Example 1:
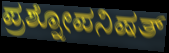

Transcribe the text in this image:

ಪ್ರಶ್ನೋಪನಿಷತ್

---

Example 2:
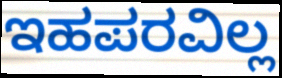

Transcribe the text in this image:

ಇಹಪರವಿಲ್ಲ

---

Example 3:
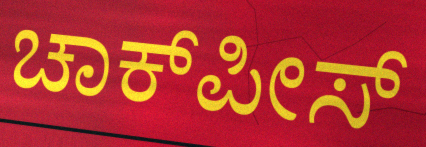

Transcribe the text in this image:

ಚಾಕ್‍ಪೀಸ್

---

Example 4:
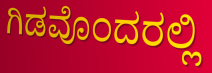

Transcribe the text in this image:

ಗಿಡವೊಂದರಲ್ಲಿ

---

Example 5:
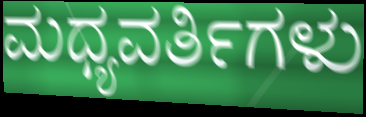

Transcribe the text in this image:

ಮಧ್ಯವರ್ತಿಗಳು